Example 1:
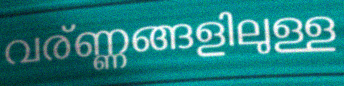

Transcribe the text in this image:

വര്ണ്ണങ്ങളിലുള്ള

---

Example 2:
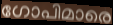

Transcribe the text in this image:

ഗോപിമാരെ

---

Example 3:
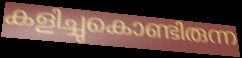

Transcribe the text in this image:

കളിച്ചുകൊണ്ടിരുന്ന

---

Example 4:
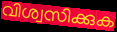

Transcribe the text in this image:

വിശ്വസിക്കുക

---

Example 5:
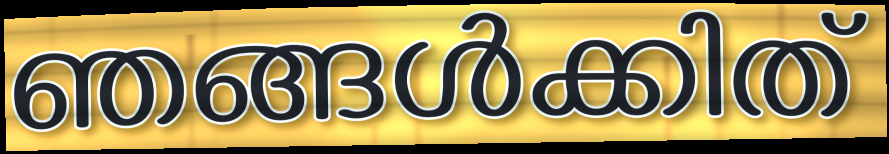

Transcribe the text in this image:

ഞങ്ങൾക്കിത്